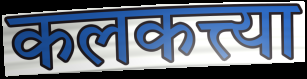
कलकत्त्या